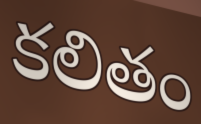
కలితం